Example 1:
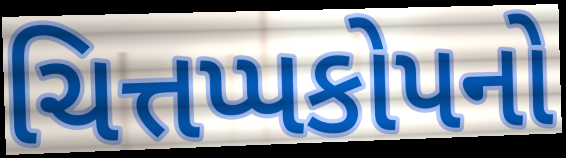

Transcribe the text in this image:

ચિત્તપ્પકોપનો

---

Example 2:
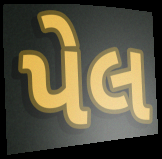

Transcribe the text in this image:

પેલ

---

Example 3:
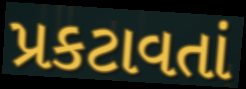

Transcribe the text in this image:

પ્રકટાવતાં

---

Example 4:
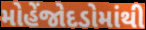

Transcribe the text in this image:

મોહેંજોદડોમાંથી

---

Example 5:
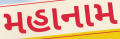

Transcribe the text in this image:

મહાનામ